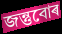
জন্তুবোৰ